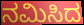
ನಮಿಸಿದ